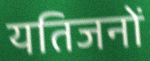
यतिजनों